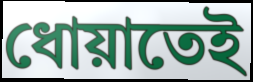
ধোয়াতেই